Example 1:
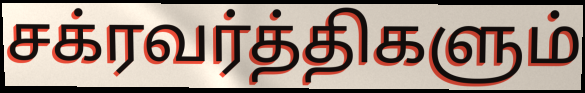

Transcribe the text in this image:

சக்ரவர்த்திகளும்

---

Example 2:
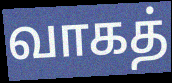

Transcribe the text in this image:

வாகத்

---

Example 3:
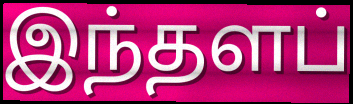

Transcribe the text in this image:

இந்தளப்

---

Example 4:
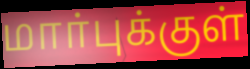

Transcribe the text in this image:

மார்புக்குள்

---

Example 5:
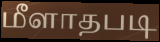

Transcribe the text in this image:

மீளாதபடி